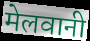
मेलवानी